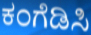
ಕಂಗೆಡಿಸಿ